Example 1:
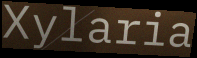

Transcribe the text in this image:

Xylaria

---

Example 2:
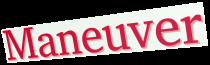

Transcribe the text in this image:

Maneuver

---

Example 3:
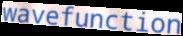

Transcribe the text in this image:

wavefunction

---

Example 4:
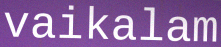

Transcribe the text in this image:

vaikalam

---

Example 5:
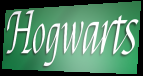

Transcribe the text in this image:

Hogwarts